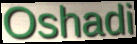
Oshadi